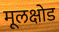
मूलक्षोड